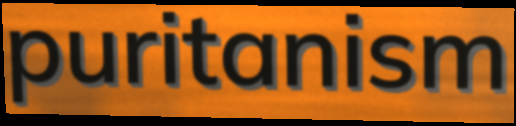
puritanism